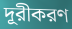
দূরীকরণ